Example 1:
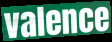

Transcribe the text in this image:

valence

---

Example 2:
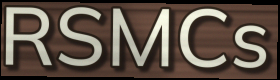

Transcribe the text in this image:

RSMCs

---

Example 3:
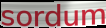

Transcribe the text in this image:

sordum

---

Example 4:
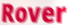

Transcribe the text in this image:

Rover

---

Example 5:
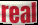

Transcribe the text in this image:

real